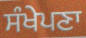
ਸੰਖੇਪਣਾ